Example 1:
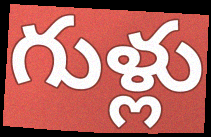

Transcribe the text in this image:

గుళ్లు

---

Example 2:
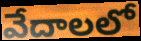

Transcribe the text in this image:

వేదాలలో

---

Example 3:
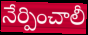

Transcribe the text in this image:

నేర్పించాలీ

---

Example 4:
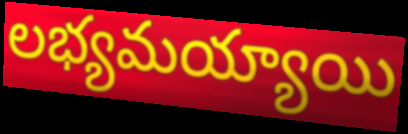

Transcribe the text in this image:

లభ్యమయ్యాయి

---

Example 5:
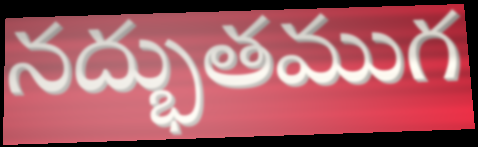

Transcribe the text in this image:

నద్భుతముగ